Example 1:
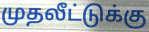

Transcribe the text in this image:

முதலீட்டுக்கு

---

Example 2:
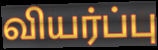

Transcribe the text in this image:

வியர்ப்பு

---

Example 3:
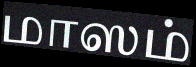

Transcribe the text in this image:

மாஸம்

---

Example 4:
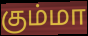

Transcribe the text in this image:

கும்மா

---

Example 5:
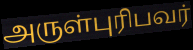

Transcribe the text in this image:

அருள்புரிபவர்